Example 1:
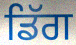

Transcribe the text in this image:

ਡਿੱਗ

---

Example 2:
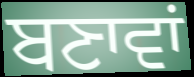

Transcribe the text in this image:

ਬਣਾਵਾਂ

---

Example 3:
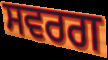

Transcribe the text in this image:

ਸਵਰਗ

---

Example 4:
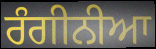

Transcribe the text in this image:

ਰੰਗੀਨੀਆ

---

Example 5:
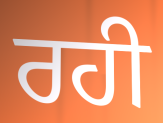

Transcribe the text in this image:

ਰਹੀ